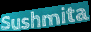
Sushmita